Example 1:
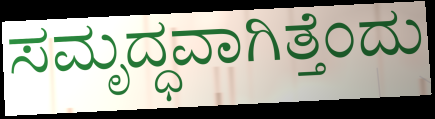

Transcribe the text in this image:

ಸಮೃದ್ಧವಾಗಿತ್ತೆಂದು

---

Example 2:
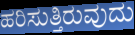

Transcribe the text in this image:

ಹರಿಸುತ್ತಿರುವುದು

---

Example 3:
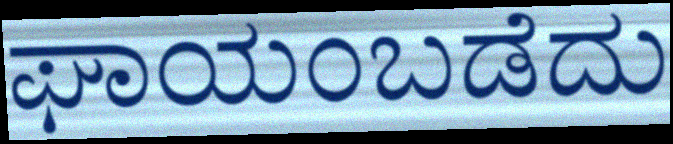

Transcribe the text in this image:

ಘಾಯಂಬಡೆದು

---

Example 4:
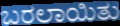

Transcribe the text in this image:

ಬರಲಾಯಿತು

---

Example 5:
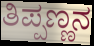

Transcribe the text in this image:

ತಿಪ್ಪಣ್ಣನ